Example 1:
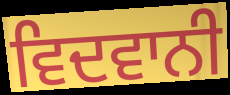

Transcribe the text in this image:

ਵਿਦਵਾਨੀ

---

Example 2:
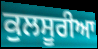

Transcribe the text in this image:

ਕੁਲਸੂਰੀਆ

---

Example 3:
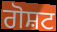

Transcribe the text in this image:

ਗੋਸ਼ਟ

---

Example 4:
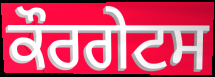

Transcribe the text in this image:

ਕੌਰਗੇਟਸ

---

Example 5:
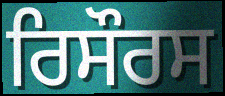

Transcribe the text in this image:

ਰਿਸੌਰਸ